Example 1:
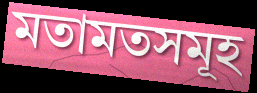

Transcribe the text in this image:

মতামতসমূহ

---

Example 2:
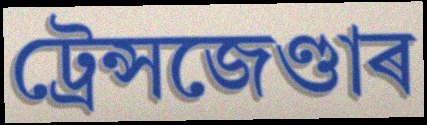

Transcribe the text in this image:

ট্ৰেন্সজেণ্ডাৰ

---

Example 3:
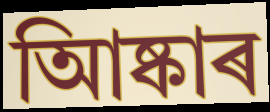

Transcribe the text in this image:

আিষ্কাৰ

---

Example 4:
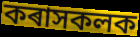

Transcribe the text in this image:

কৰাসকলক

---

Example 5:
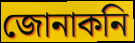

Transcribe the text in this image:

জোনাকনি